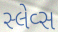
સ્લેવ્સ